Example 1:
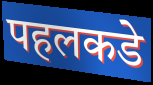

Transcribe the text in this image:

पहलकडे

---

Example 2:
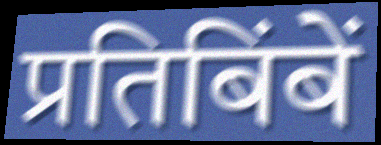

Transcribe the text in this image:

प्रतिबिंबें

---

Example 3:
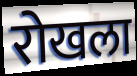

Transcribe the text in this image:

रोखला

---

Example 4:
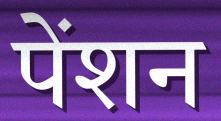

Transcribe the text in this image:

पेंशन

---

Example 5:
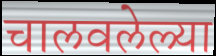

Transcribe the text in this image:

चालवलेल्या